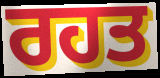
ਰਹਤ